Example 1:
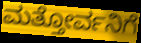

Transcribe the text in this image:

ಮತ್ತೋರ್ವನಿಗೆ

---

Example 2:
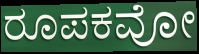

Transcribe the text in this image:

ರೂಪಕವೋ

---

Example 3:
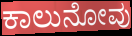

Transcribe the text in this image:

ಕಾಲುನೋವು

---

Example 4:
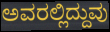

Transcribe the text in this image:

ಅವರಲ್ಲಿದ್ದುವು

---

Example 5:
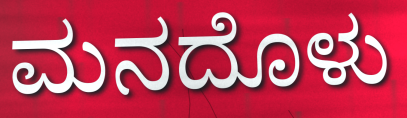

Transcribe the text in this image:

ಮನದೊಳು